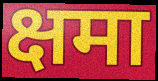
क्षमा